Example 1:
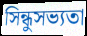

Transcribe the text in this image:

সিন্ধুসভ্যতা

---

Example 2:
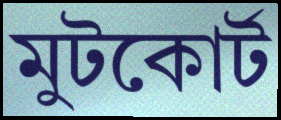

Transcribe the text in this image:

মুটকোর্ট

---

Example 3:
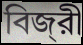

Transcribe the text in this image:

বিজ্‌রী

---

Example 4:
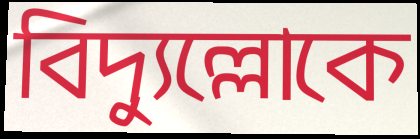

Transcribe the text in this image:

বিদ্যুল্লোকে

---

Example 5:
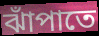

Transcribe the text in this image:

ঝাঁপাতে